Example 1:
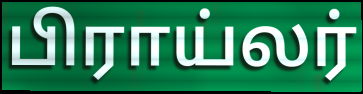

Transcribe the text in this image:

பிராய்லர்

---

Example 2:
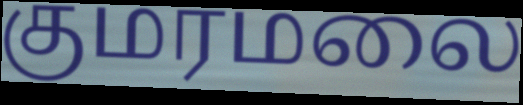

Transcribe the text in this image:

குமரமலை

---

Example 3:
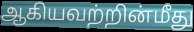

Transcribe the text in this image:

ஆகியவற்றின்மீது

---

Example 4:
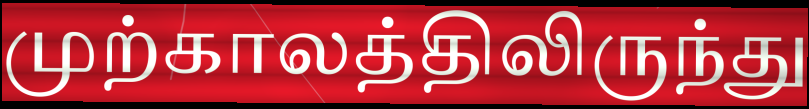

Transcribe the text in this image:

முற்காலத்திலிருந்து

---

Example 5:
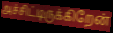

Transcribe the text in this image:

அச்சிட்டிருக்கிறேன்